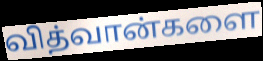
வித்வான்களை